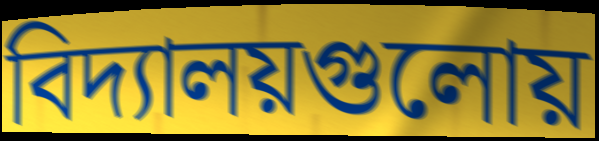
বিদ্যালয়গুলোয়